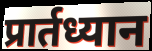
प्रार्तध्यान